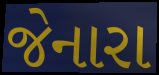
જેનારા